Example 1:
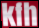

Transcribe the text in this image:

kfh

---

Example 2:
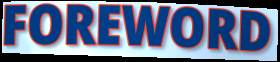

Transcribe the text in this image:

FOREWORD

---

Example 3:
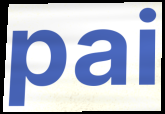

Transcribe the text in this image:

pai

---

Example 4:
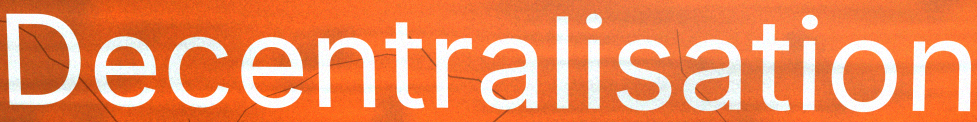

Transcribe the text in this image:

Decentralisation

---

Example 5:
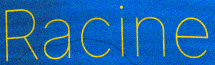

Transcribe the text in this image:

Racine